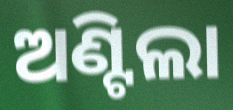
ଅଣ୍ଟିଲା